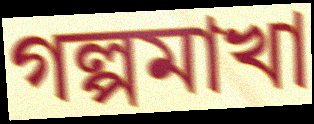
গল্পমাখা